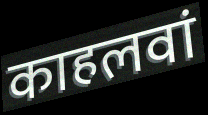
काहलवां